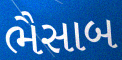
ભૈસાબ